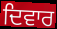
ਦਿਵਾਰ